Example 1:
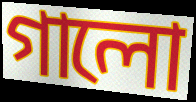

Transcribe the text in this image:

গালো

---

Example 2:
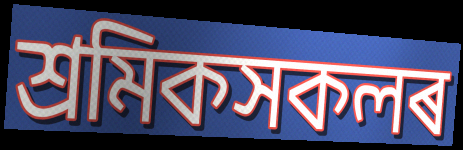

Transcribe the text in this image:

শ্ৰমিকসকলৰ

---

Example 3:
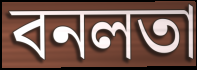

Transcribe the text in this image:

বনলতা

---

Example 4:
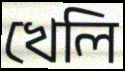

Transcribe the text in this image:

খেলি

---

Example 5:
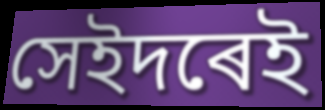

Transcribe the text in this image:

সেইদৰেই